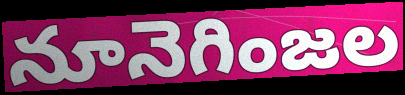
నూనెగింజల